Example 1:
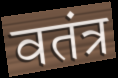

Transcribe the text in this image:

वतंत्र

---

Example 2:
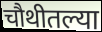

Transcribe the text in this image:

चौथीतल्या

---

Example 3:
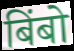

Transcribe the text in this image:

बिंबो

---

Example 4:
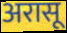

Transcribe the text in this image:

अरासू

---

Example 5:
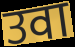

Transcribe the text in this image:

उवा